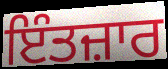
ਇੰਤਜ਼ਾਰ